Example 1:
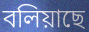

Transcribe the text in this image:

বলিয়াছে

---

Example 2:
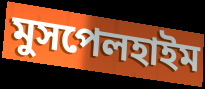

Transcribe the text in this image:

মুসপেলহাইম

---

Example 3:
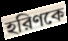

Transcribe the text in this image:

হরিণকে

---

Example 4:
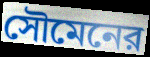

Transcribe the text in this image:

সৌমেনের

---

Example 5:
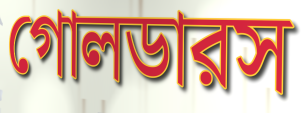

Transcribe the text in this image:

গোলডারস